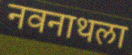
नवनाथला